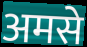
अमसे